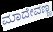
ಮಾದೇವಣ್ಣ